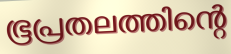
ഭൂപ്രതലത്തിന്റെ